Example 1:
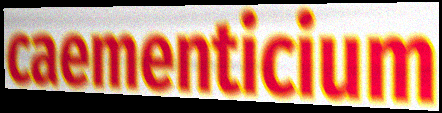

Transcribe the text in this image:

caementicium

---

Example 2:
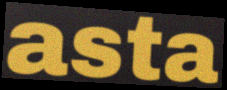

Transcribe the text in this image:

asta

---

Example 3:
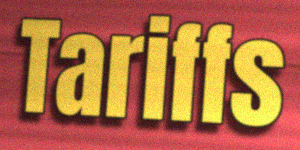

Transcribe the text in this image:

Tariffs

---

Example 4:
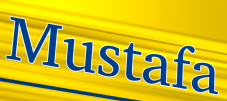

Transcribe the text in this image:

Mustafa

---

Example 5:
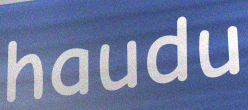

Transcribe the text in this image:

haudu